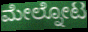
ಮೇಲ್ನೋಟ